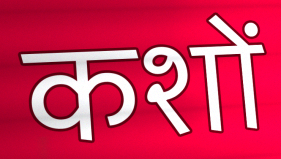
कशों